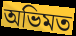
অভিমত